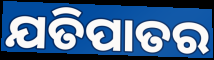
ଯତିପାତର